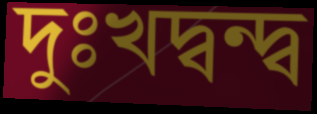
দুঃখদ্বন্দ্ব